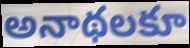
అనాథలకూ